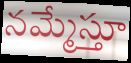
నమ్మేస్తూ